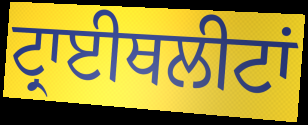
ਟ੍ਰਾਈਥਲੀਟਾਂ